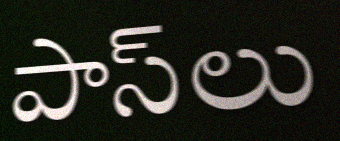
పాస్‌లు